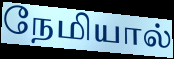
நேமியால்